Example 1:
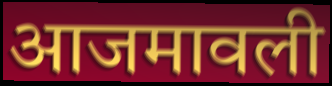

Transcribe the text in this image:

आजमावली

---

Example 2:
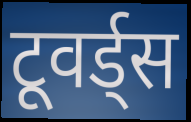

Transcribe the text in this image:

टूवर्ड्स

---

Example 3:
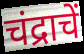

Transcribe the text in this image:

चंद्राचें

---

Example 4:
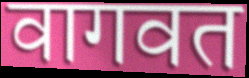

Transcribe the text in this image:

वागवत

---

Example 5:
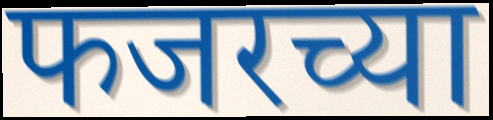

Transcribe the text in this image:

फजरच्या